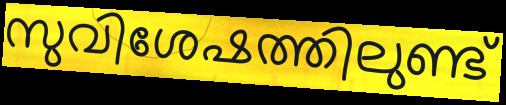
സുവിശേഷത്തിലുണ്ട്